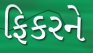
ફિકરને